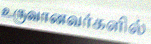
உருவானவர்களில்